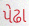
પેઢા